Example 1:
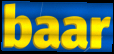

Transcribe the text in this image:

baar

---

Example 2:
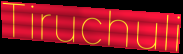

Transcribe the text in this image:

Tiruchuli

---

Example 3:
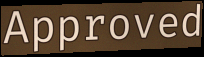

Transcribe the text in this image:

Approved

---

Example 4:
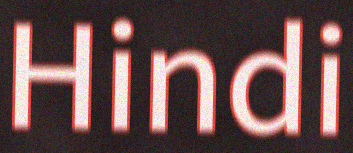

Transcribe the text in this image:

Hindi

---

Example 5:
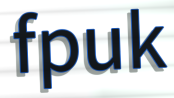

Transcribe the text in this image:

fpuk